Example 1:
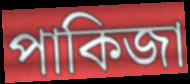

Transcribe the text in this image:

পাকিজা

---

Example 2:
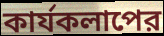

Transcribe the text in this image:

কার্যকলাপের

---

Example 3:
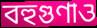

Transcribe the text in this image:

বহুগুণাও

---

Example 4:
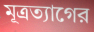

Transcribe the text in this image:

মূত্রত্যাগের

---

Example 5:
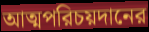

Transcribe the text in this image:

আত্মপরিচয়দানের